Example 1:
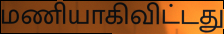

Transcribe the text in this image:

மணியாகிவிட்டது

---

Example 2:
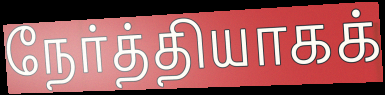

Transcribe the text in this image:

நேர்த்தியாகக்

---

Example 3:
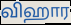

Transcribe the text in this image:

விஹார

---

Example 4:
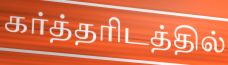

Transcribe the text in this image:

கர்த்தரிடத்தில்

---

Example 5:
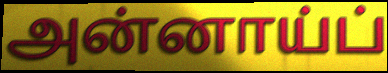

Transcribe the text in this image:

அன்னாய்ப்